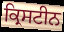
ਕ੍ਰਿਸਟੀਨ